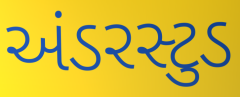
અંડરસ્ટુડ